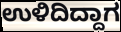
ಉಳಿದಿದ್ದಾಗ